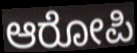
ಆರೋಪಿ